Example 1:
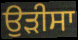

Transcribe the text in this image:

ਉੜੀਸਾ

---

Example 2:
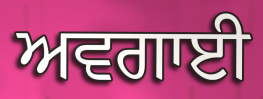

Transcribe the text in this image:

ਅਵਗਾਈ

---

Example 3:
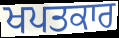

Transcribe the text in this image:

ਖਪਤਕਾਰ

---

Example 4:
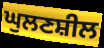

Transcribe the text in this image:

ਘੁਲਣਸ਼ੀਲ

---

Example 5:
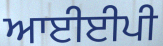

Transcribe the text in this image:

ਆਈਈਪੀ